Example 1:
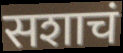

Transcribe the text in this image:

सशाचं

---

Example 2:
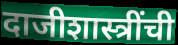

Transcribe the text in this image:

दाजीशास्त्रींची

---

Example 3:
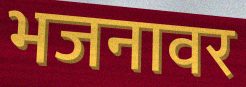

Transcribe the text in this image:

भजनावर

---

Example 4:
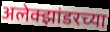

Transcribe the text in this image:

अलेक्झांडरच्या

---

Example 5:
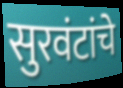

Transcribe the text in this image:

सुरवंटांचे